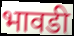
भावडी